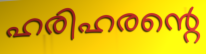
ഹരിഹരന്റെ